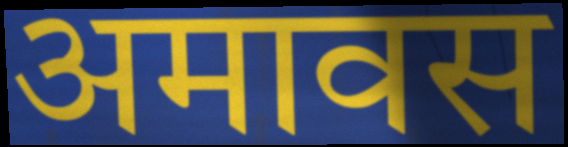
अमावस